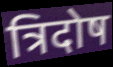
त्रिदोष